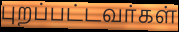
புறப்பட்டவர்கள்